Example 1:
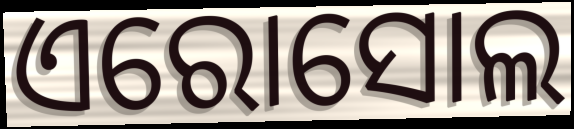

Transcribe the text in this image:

ଏରୋସୋଲ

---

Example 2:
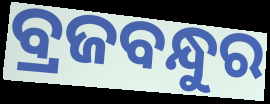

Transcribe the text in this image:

ବ୍ରଜବନ୍ଧୁର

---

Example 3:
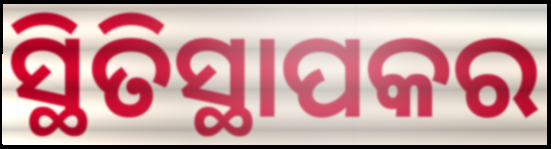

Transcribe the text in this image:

ସ୍ଥିତିସ୍ଥାପକର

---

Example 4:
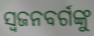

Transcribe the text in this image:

ସ୍ୱଜନବର୍ଗଙ୍କୁ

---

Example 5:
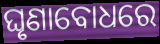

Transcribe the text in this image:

ଘୃଣାବୋଧରେ